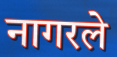
नागरले